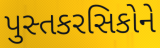
પુસ્તકરસિકોને